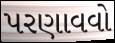
પરણાવવો